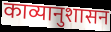
काव्यानुशासन